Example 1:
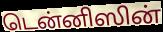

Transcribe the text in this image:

டென்னிஸின்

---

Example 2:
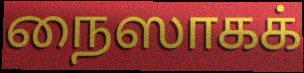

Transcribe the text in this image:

நைஸாகக்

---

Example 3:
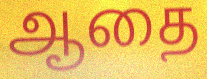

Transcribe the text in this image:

ஆதை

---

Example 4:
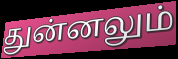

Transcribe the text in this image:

துன்னலும்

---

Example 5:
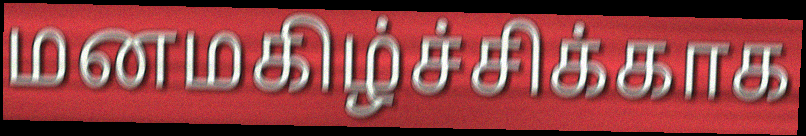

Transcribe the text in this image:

மனமகிழ்ச்சிக்காக